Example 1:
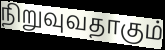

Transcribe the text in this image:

நிறுவுவதாகும்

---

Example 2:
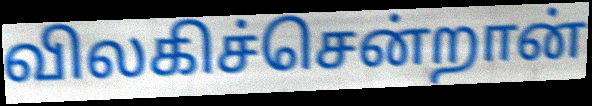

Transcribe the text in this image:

விலகிச்சென்றான்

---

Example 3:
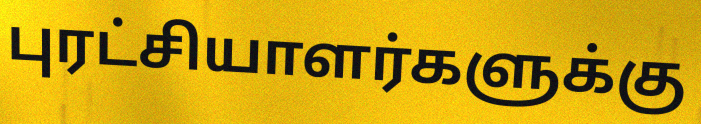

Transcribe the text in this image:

புரட்சியாளர்களுக்கு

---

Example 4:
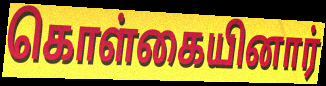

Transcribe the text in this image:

கொள்கையினார்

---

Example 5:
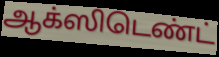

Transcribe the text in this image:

ஆக்ஸிடெண்ட்